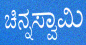
ಚಿನ್ನಸ್ವಾಮಿ